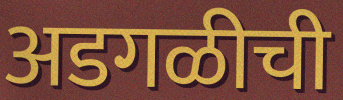
अडगळीची